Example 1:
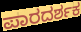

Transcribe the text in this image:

ಪಾರದರ್ಶಕ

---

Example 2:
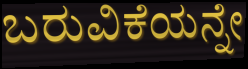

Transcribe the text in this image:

ಬರುವಿಕೆಯನ್ನೇ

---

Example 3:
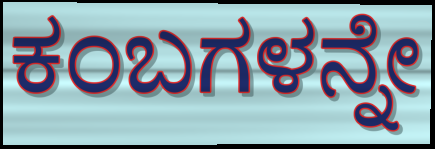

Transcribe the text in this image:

ಕಂಬಗಳನ್ನೇ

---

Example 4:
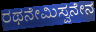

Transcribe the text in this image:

ರಥನೇಮಿಸ್ವನೇನ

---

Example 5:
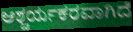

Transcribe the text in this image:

ಆಶ್ಚರ್ಯಕರವಾಗಿದೆ